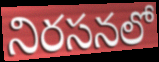
నిరసనలో